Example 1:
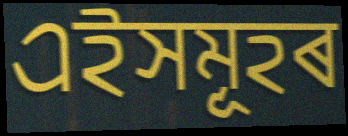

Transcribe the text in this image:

এইসমূহৰ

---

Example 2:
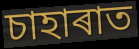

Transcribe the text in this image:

চাহাৰাত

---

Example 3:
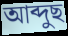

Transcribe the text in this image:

আব্দুছ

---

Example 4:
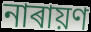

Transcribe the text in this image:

নাৰায়ণ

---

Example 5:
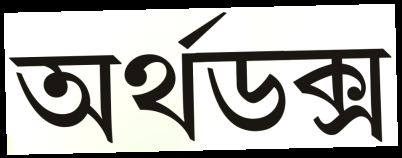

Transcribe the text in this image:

অৰ্থডক্স